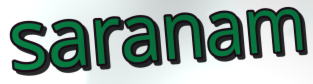
saranam